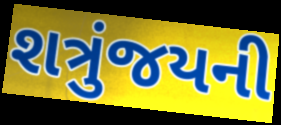
શત્રુંજયની